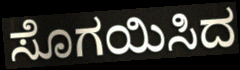
ಸೊಗಯಿಸಿದ